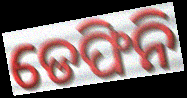
ଡେଫିନି